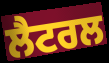
ਲੈਟਰਲ